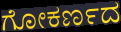
ಗೋಕರ್ಣದ